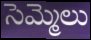
సెమ్మెలు